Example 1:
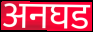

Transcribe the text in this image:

अनघड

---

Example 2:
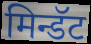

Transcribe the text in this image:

मिन्डॅट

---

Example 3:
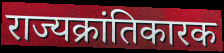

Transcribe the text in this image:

राज्यक्रांतिकारक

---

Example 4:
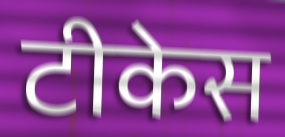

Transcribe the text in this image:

टीकेस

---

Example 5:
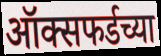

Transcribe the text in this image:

ऑक्सफर्डच्या